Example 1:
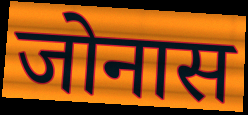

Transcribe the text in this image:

जोनास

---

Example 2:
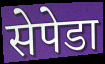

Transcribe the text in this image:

सेपेडा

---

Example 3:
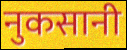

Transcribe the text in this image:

नुकसानी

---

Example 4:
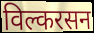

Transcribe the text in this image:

विल्करसन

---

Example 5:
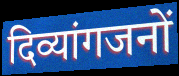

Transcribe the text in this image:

दिव्यांगजनों